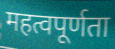
महत्वपूर्णता